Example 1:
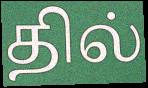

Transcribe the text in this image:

தில்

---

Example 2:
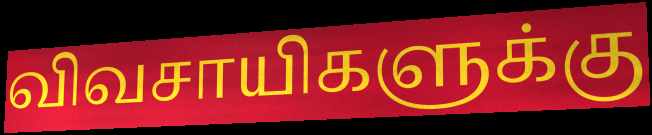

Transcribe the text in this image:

விவசாயிகளுக்கு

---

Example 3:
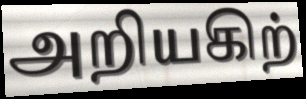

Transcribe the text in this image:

அறியகிற்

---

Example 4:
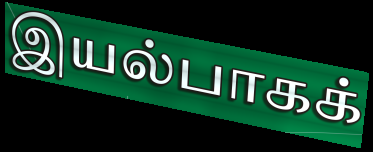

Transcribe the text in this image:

இயல்பாகக்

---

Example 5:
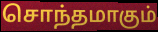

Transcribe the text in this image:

சொந்தமாகும்